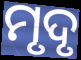
ମୃଦୃ